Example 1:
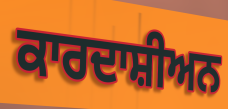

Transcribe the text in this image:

ਕਾਰਦਾਸ਼ੀਅਨ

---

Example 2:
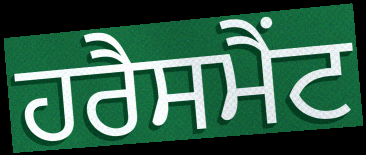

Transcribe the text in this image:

ਹਰੈਸਮੈਂਟ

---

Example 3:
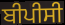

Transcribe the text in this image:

ਬੀਪੀਸੀ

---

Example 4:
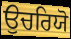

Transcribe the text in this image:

ਉਚਰਿਯੋ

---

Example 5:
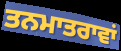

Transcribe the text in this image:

ਤਨਮਾਤਰਾਵਾਂ